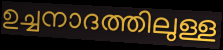
ഉച്ചനാദത്തിലുള്ള